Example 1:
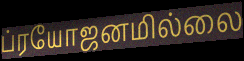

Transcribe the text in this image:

ப்ரயோஜனமில்லை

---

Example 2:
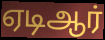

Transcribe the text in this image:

ஏடிஆர்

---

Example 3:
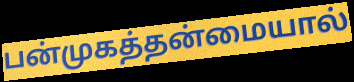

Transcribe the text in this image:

பன்முகத்தன்மையால்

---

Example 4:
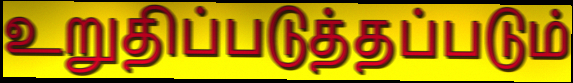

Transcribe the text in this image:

உறுதிப்படுத்தப்படும்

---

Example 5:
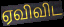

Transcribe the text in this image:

ஏவிவிட